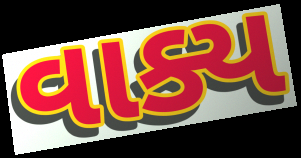
વાક્ય